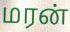
மரன்